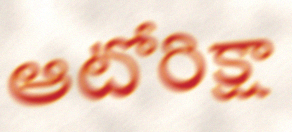
ఆటోరిక్షా